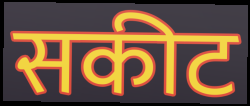
सकीट